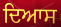
ਦਿਆਸ